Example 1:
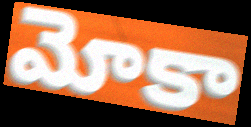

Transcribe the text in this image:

మోకా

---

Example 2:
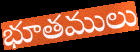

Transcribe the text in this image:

భూతములు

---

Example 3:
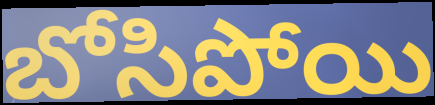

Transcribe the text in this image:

బోసిపోయి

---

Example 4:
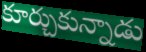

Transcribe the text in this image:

కూర్చుకున్నాడు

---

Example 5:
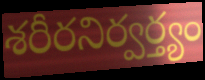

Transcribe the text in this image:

శరీరనిర్వర్త్యం